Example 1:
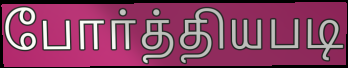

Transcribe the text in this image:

போர்த்தியபடி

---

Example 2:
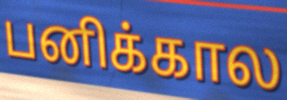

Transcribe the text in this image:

பனிக்கால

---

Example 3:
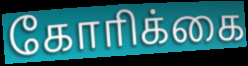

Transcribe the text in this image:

கோரிக்கை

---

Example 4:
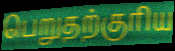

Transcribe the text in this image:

பெறுதற்குரிய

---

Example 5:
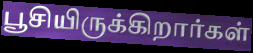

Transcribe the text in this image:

பூசியிருக்கிறார்கள்